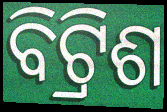
ବିଟ୍ରିଶ